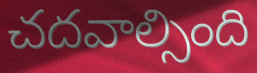
చదవాల్సింది